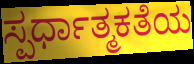
ಸ್ಪರ್ಧಾತ್ಮಕತೆಯ